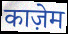
काज़ेम